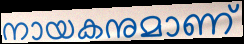
നായകനുമാണ്